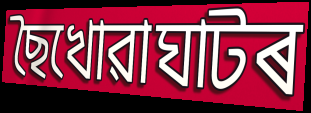
ছৈখোৱাঘাটৰ